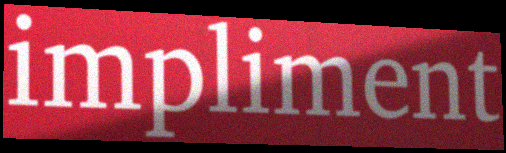
impliment